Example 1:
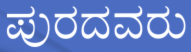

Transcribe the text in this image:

ಪುರದವರು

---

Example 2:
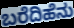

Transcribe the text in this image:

ಬರೆದಿಹೆನು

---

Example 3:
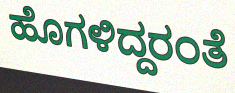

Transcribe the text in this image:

ಹೊಗಳಿದ್ದರಂತೆ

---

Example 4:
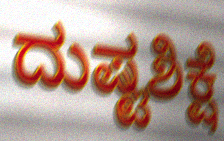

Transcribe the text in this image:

ದುಷ್ಟಶಿಕ್ಷೆ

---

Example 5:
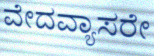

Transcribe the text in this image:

ವೇದವ್ಯಾಸರೇ